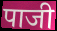
पाजी